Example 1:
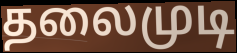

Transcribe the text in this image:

தலைமுடி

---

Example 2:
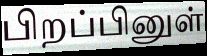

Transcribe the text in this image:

பிறப்பினுள்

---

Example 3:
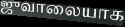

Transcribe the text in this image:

ஜுவாலையாக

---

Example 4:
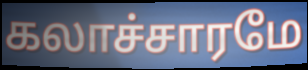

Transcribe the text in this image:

கலாச்சாரமே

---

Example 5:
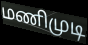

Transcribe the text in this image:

மணிமுடி